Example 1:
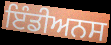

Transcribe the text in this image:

ਇੰਡੀਅਨਸ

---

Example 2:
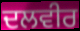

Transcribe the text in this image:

ਦਲਵੀਰ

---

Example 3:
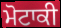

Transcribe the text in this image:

ਮੋਟਾਕੀ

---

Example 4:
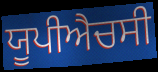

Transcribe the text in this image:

ਯੂਪੀਐਚਸੀ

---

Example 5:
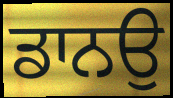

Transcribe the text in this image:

ਡਾਨਉ